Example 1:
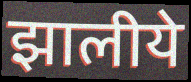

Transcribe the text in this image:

झालीये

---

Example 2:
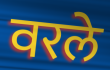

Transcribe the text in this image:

वरले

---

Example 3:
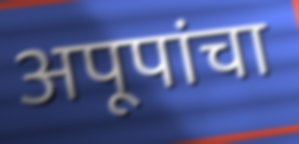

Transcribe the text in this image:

अपूपांचा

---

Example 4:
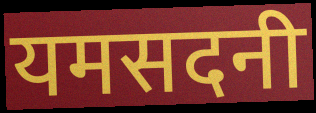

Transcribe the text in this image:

यमसदनी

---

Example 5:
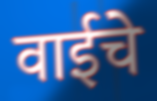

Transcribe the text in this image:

वाईचे